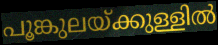
പൂങ്കുലയ്ക്കുള്ളിൽ